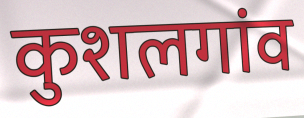
कुशलगांव